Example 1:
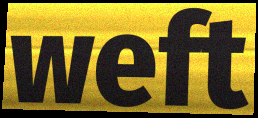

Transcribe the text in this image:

weft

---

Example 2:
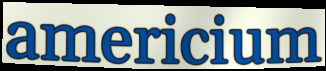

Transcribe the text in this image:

americium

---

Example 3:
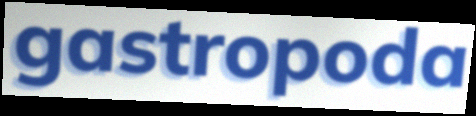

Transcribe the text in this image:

gastropoda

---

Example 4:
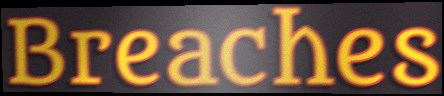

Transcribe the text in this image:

Breaches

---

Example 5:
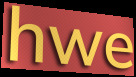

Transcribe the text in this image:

hwe